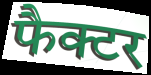
फैक्टर